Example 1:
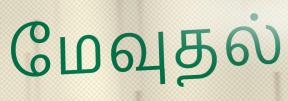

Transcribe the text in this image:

மேவுதல்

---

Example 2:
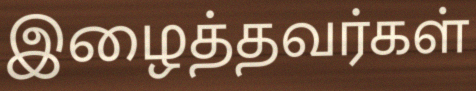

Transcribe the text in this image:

இழைத்தவர்கள்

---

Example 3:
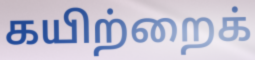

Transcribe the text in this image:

கயிற்றைக்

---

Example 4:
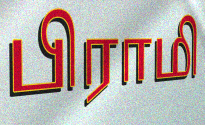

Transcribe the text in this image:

பிராமி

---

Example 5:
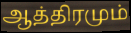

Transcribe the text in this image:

ஆத்திரமும்